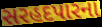
સરહદપારના